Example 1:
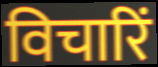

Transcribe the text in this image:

विचारिं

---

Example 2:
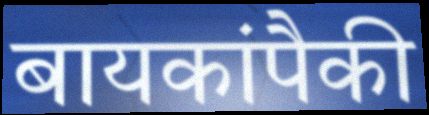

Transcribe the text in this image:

बायकांपैकी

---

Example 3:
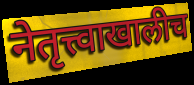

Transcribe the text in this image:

नेतृत्त्वाखालीच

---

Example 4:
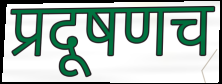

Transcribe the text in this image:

प्रदूषणच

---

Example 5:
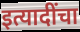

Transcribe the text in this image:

इत्यादींचा